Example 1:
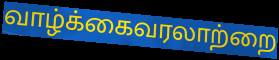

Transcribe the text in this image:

வாழ்க்கைவரலாற்றை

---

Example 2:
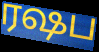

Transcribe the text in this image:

ரஷப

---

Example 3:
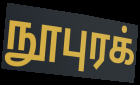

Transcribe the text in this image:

நூபுரக்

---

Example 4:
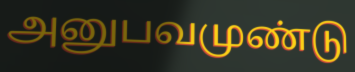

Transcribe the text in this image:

அனுபவமுண்டு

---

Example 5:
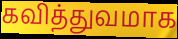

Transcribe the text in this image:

கவித்துவமாக